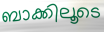
ബാക്കിലൂടെ